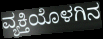
ವ್ಯಕ್ತಿಯೊಳಗಿನ